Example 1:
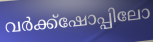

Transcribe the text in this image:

വർക്ക്ഷോപ്പിലോ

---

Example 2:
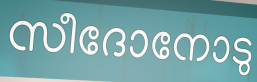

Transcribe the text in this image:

സീദോനോടു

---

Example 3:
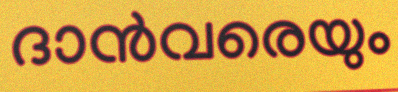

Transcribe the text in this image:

ദാൻവരെയും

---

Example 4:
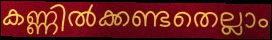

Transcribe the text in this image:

കണ്ണിൽക്കണ്ടതെല്ലാം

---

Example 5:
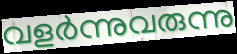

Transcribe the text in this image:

വളർന്നുവരുന്നു